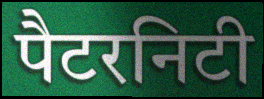
पैटरनिटी